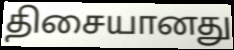
திசையானது